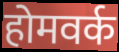
होमवर्क